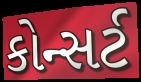
કોન્સર્ટ